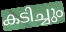
കടിച്ചും